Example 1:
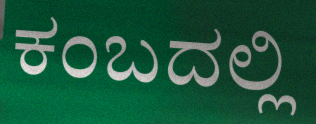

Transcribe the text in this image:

ಕಂಬದಲ್ಲಿ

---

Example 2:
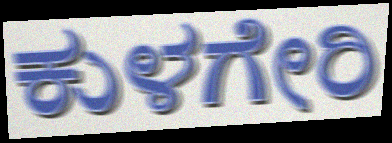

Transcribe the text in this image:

ಕುಳಗೇರಿ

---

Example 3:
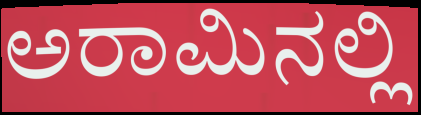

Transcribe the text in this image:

ಅರಾಮಿನಲ್ಲಿ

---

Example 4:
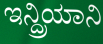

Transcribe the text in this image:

ಇನ್ದ್ರಿಯಾನಿ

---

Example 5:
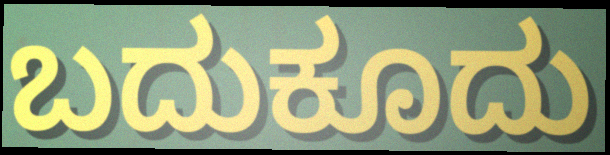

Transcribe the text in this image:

ಬದುಕೂದು